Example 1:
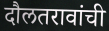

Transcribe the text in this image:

दौलतरावांची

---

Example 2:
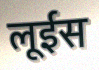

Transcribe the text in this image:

लूईस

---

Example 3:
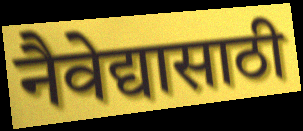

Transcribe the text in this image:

नैवेद्यासाठी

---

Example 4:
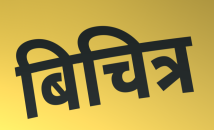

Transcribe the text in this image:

बिचित्र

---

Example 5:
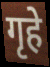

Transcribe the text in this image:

गृहे